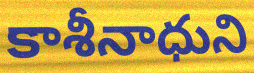
కాశీనాధుని